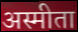
अस्मीता